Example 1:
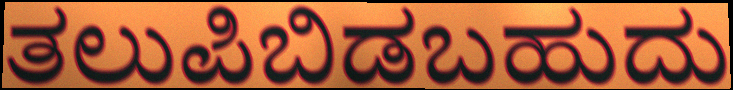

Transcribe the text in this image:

ತಲುಪಿಬಿಡಬಹುದು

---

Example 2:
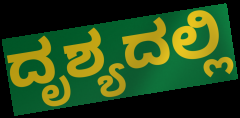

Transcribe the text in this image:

ದೃಶ್ಯದಲ್ಲಿ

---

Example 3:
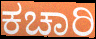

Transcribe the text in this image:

ಕಚಾರಿ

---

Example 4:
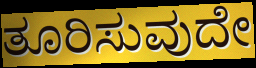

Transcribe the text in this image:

ತೂರಿಸುವುದೇ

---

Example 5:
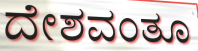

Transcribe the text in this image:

ದೇಶವಂತೂ